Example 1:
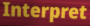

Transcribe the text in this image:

Interpret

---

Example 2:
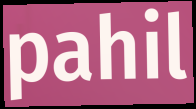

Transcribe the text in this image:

pahil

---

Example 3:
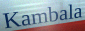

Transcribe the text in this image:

Kambala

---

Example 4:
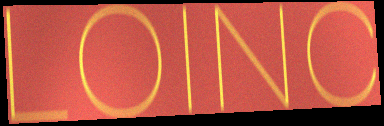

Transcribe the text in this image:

LOINC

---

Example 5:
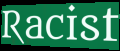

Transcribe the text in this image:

Racist